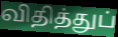
விதித்துப்